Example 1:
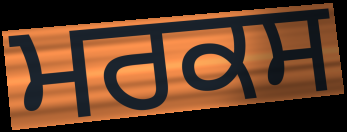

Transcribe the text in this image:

ਮਰਕਸ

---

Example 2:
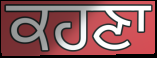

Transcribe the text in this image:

ਕਹਣਾ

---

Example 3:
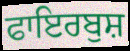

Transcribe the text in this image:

ਫਾਇਰਬੁਸ਼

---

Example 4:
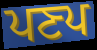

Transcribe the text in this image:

ਪਣਪ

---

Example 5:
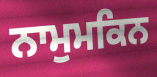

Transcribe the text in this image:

ਨਾਮੁਮਕਿਨ